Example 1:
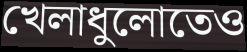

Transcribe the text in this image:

খেলাধুলোতেও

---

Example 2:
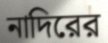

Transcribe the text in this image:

নাদিরের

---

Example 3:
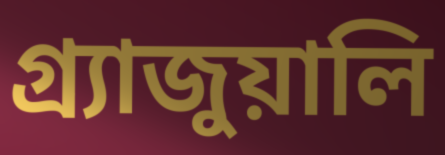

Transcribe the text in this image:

গ্র্যাজুয়ালি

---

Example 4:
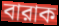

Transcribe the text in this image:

বারাক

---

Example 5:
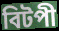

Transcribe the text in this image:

বিটপী